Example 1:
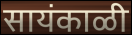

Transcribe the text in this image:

सायंकाळी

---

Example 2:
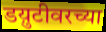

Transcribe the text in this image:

डय़ुटीवरच्या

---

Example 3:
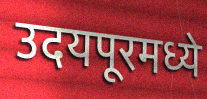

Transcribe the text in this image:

उदयपूरमध्ये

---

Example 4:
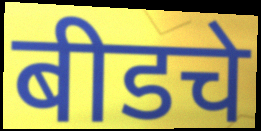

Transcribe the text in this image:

बीडचे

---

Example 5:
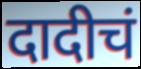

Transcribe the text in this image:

दादीचं